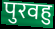
पुरवहु